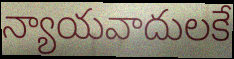
న్యాయవాదులకే